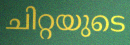
ചിറ്റയുടെ